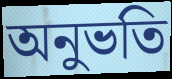
অনুভতি